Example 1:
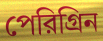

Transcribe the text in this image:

পেরিগ্রিন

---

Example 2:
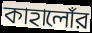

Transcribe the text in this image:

কাহালোঁর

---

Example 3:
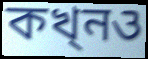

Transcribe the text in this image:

কখ্নও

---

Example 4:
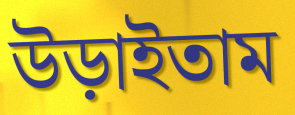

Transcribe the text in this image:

উড়াইতাম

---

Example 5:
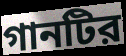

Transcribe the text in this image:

গানটির